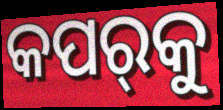
କପର୍‌କୁ